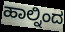
ಹಾಲ್ನಿಂದ